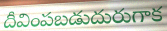
దీవింపబడుదురుగాక